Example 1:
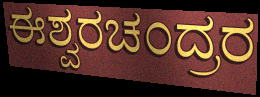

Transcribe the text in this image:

ಈಶ್ವರಚಂದ್ರರ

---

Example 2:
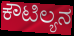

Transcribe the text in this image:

ಕೌಟಿಲ್ಯನ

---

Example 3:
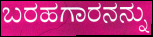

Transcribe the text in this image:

ಬರಹಗಾರನನ್ನು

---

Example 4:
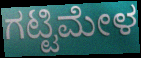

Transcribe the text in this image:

ಗಟ್ಟಿಮೇಳ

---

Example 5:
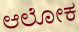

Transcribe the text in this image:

ಆಲೋಕ